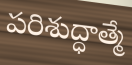
పరిశుద్ధాత్మే